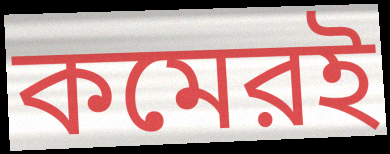
কমেরই